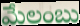
మేలంబు